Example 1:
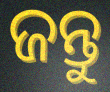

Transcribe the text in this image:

ଜନ୍ତୁ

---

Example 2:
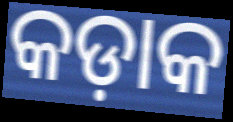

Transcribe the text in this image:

କଡ଼ାକ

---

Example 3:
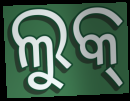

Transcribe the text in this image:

ଲୁକ୍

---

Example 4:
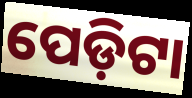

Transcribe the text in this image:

ପେଡ଼ିଟା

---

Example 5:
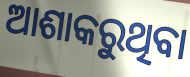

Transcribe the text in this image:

ଆଶାକରୁଥିବା